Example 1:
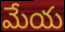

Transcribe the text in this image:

మేయ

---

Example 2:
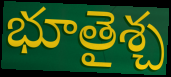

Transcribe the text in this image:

భూతైశ్చ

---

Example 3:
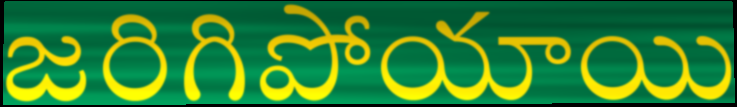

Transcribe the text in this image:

జరిగిపోయాయి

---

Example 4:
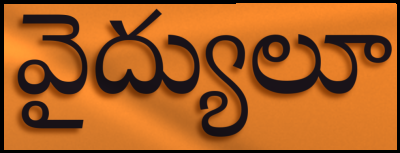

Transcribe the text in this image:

వైద్యులూ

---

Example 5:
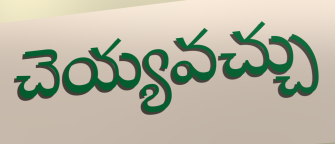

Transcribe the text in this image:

చెయ్యవచ్చు